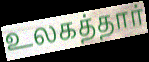
உலகத்தார்